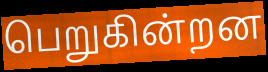
பெறுகின்றன